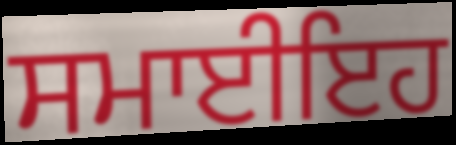
ਸਮਾਈਇਹ